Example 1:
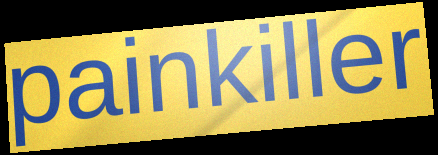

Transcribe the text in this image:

painkiller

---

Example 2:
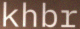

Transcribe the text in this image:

khbr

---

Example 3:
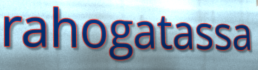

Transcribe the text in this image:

rahogatassa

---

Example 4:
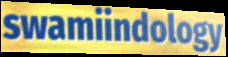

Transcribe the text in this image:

swamiindology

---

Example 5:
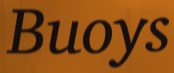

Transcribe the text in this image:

Buoys